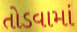
તોડવામાં